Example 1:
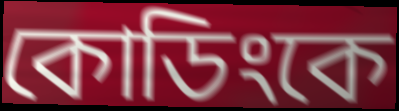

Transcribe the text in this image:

কোডিংকে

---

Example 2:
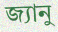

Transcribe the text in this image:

জ্যানু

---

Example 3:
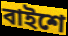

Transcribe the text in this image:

বাইশে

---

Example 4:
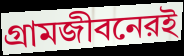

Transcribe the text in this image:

গ্রামজীবনেরই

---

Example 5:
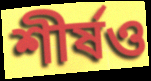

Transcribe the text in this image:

শীর্ষও